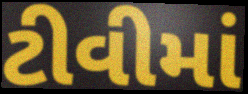
ટીવીમાં